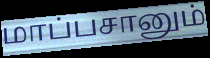
மாப்பசானும்